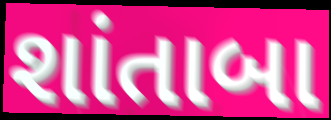
શાંતાબા